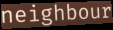
neighbour